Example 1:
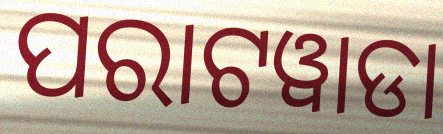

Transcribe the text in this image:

ପରାଟୱାଡା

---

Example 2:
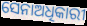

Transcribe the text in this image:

ସେନାଅଧିକାରୀ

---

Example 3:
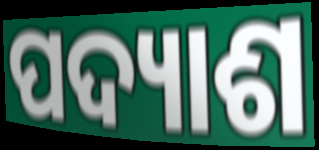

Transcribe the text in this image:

ପଦ୍ୟାଶ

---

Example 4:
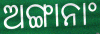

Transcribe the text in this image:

ଅଙ୍ଗାନାଂ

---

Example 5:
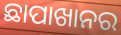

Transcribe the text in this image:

ଛାପାଖାନର